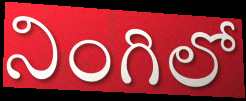
నింగిలో